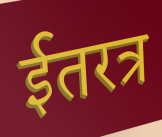
ईतरत्र